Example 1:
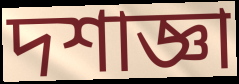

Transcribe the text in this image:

দশাজ্ঞা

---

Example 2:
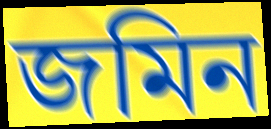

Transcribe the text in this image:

জমিন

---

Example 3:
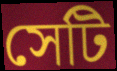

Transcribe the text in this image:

সেটি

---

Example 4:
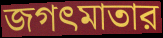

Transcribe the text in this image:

জগৎমাতার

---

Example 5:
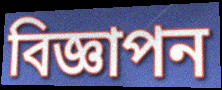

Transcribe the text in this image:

বিজ্ঞাপন